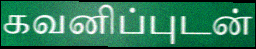
கவனிப்புடன்